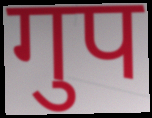
गुप